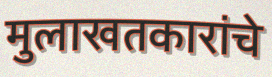
मुलाखतकारांचे